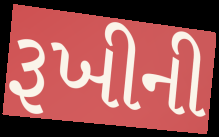
રૂખીની